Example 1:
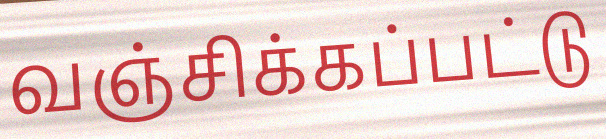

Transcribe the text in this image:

வஞ்சிக்கப்பட்டு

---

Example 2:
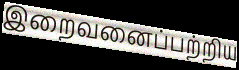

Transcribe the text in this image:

இறைவனைப்பற்றிய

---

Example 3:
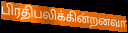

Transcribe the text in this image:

பிரதிபலிக்கின்றனவா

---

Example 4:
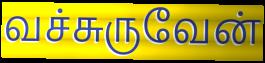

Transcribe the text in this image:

வச்சுருவேன்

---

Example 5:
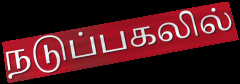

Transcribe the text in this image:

நடுப்பகலில்